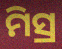
ମିସ୍ର